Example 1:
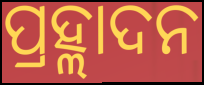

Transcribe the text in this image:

ପ୍ରହ୍ଲାଦନ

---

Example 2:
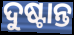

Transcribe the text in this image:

ଦୁଷ୍ଟାନ୍ତ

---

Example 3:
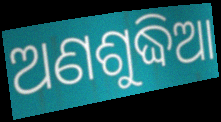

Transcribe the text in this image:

ଅଣଶୁଦ୍ଧିଆ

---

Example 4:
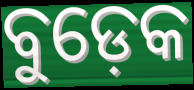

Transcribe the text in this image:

ବୁଡ଼େକ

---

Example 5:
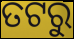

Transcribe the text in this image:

ତଟରୁ